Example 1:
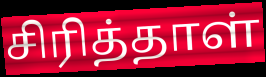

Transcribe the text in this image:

சிரித்தாள்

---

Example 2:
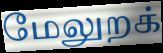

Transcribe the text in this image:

மேலுறக்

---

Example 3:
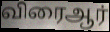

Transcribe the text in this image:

விரைஆர்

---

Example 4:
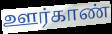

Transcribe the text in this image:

ஊர்காண்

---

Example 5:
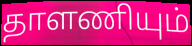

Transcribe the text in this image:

தாளணியும்